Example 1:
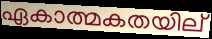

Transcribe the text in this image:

ഏകാത്മകതയില്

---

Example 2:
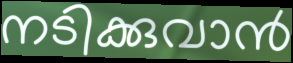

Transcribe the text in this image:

നടിക്കുവാൻ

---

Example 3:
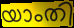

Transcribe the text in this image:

യാംതി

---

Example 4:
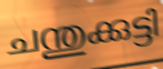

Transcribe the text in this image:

ചന്തുക്കുട്ടി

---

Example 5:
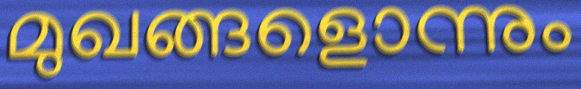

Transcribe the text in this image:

മുഖങ്ങളൊന്നും